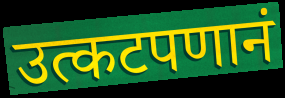
उत्कटपणानं